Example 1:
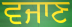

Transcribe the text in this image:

ਵਜਾਣ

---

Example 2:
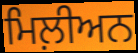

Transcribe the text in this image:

ਮਿਲ਼ੀਅਨ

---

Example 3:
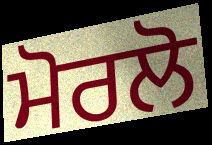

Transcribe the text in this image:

ਮੋਰਲੋ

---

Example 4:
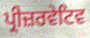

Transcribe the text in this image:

ਪ੍ਰੀਜ਼ਰਵੇਟਿਵ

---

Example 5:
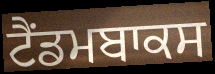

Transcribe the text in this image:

ਟੈਂਡਮਬਾਕਸ